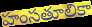
హంసతూలికా